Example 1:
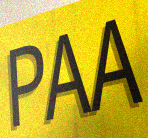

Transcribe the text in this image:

PAA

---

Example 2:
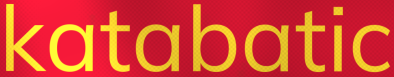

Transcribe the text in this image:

katabatic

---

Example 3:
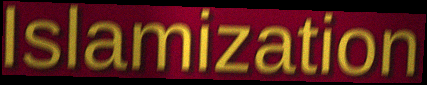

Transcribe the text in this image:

Islamization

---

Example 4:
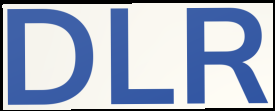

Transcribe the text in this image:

DLR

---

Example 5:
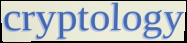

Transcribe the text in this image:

cryptology